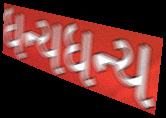
ધન્યધન્ય